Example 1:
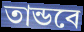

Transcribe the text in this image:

তান্ডবে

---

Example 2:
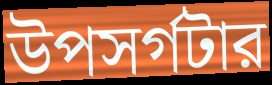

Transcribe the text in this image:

উপসর্গটার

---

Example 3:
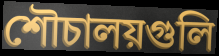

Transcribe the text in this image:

শৌচালয়গুলি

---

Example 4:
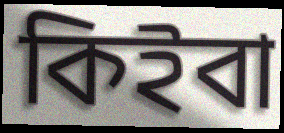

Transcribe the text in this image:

কিইবা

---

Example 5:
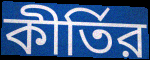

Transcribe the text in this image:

কীর্তির